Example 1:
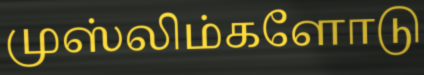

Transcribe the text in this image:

முஸ்லிம்களோடு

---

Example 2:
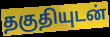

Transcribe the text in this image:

தகுதியுடன்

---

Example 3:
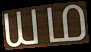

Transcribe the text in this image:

யம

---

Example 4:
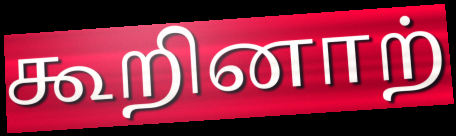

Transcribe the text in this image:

கூறினாற்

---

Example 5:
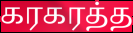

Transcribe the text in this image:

கரகரத்த